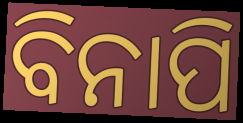
ବିନାପି